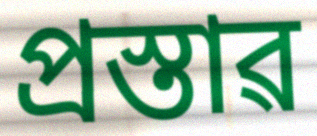
প্ৰস্তাৱ